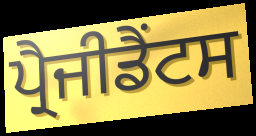
ਪ੍ਰੈਜੀਡੈਂਟਸ